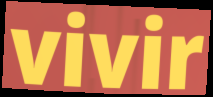
vivir